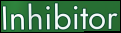
Inhibitor